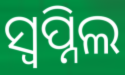
ସ୍ୱପ୍ନିଲ